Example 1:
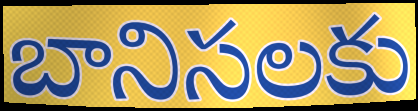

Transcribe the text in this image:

బానిసలకు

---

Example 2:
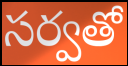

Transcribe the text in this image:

సర్వతో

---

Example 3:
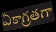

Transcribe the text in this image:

ఏకాగ్రతగా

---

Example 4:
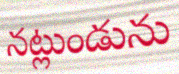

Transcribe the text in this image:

నట్లుండును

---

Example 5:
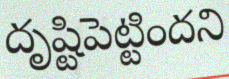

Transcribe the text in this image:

దృష్టిపెట్టిందని